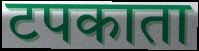
टपकाता